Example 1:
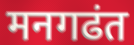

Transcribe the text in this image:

मनगढंत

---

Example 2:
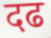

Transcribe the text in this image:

दढ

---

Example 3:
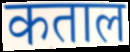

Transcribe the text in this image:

कताल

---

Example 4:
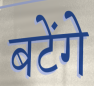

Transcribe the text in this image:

बटेंगे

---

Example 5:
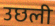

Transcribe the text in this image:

उछली